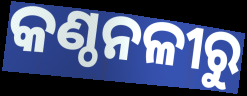
କଣ୍ଠନଳୀରୁ